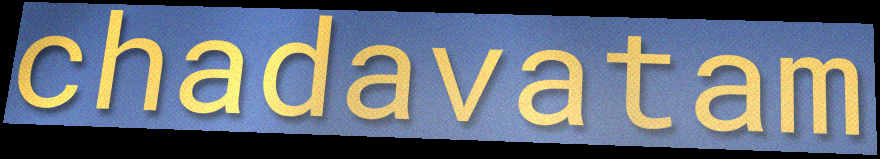
chadavatam